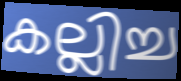
കല്ലിച്ച